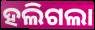
ହଲିଗଲା